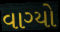
વાગ્યો